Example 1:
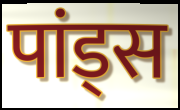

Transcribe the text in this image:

पांड्स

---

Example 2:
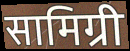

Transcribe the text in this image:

सामिग्री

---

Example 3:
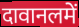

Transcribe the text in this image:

दावानलमें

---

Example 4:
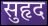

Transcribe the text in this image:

सुहृद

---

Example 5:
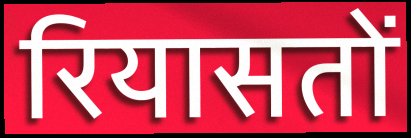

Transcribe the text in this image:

रियासतों